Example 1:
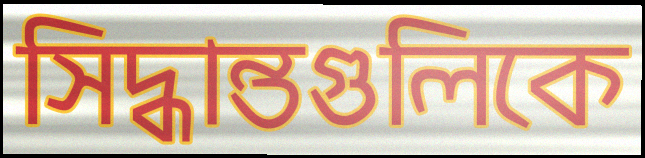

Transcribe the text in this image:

সিদ্ধান্তগুলিকে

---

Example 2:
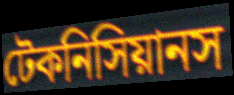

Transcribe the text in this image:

টেকনিসিয়ানস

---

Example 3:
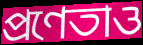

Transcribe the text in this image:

প্রণেতাও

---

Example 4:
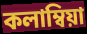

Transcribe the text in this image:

কলাম্বিয়া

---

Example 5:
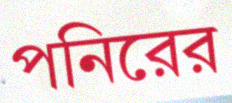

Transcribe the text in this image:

পনিরের